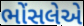
ભોંસલેએ